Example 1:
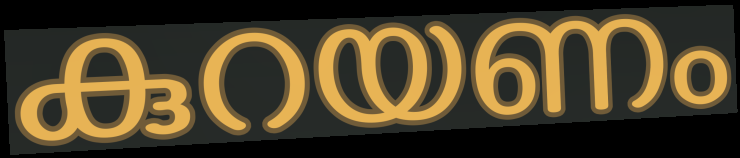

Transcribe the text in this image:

കുറയണം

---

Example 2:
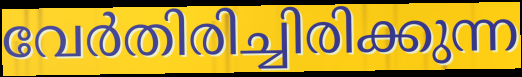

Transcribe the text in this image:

വേർതിരിച്ചിരിക്കുന്ന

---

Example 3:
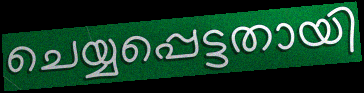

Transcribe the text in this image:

ചെയ്യപ്പെട്ടതായി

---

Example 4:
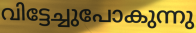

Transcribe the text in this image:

വിട്ടേച്ചുപോകുന്നു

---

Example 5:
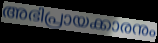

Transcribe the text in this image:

അഭിപ്രായക്കാരനും